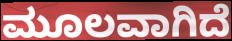
ಮೂಲವಾಗಿದೆ